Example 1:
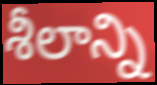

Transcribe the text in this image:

శీలాన్ని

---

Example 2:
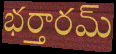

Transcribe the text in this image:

భర్తారమ్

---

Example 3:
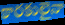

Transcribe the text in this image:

కారకులైనా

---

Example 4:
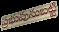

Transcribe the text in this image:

ప్రభువునుబట్టి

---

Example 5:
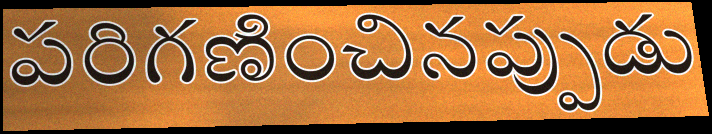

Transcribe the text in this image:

పరిగణించినప్పుడు